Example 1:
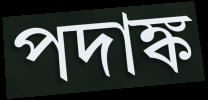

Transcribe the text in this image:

পদাঙ্ক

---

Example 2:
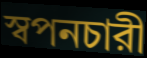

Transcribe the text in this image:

স্বপনচারী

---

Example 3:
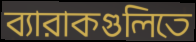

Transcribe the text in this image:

ব্যারাকগুলিতে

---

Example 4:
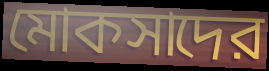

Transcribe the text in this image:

মোকসাদের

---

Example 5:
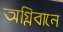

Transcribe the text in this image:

অগ্নিবানে